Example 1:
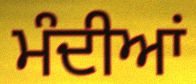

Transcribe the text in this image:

ਮੰਦੀਆਂ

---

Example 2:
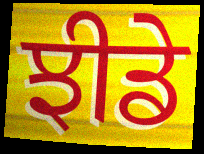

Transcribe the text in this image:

ਝੀਡੇ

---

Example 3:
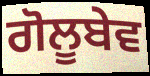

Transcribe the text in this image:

ਗੋਲੂਬੇਵ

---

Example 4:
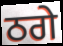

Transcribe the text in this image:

ਠਗੇ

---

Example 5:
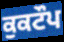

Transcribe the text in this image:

ਕੁਕਟੌਪ